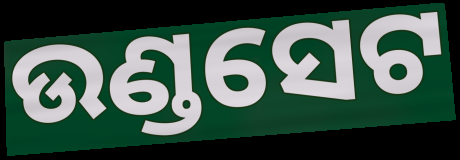
ଉଣ୍ଡସେଟ